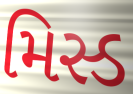
મિસ્ડ